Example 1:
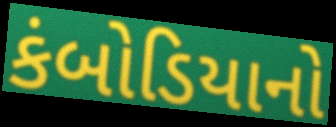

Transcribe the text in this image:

કંબોડિયાનો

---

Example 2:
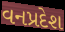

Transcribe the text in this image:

વનપ્રદેશ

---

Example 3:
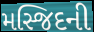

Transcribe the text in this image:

મસ્જિદની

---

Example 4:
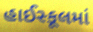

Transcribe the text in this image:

હાઈસ્કૂલમાં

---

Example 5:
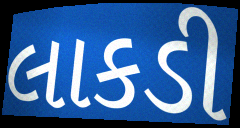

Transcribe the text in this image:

લાકડી